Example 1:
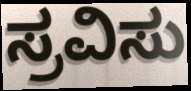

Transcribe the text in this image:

ಸ್ರವಿಸು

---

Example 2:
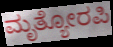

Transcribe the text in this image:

ಮೃತ್ಯೋರಪಿ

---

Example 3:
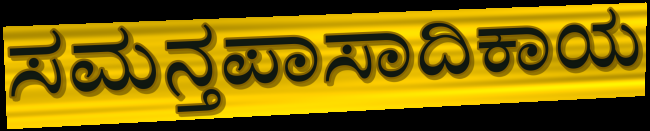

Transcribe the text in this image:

ಸಮನ್ತಪಾಸಾದಿಕಾಯ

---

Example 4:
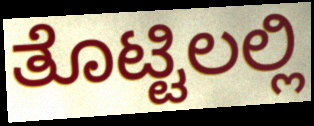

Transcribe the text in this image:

ತೊಟ್ಟಿಲಲ್ಲಿ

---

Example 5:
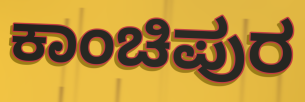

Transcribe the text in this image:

ಕಾಂಚಿಪುರ